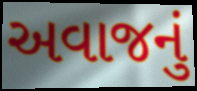
અવાજનું